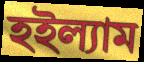
হইল্যাম